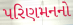
પરિણમનનો